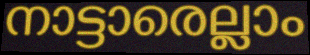
നാട്ടാരെല്ലാം